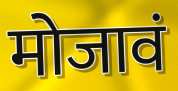
मोजावं